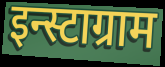
इन्स्टाग्राम